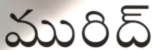
మురిద్